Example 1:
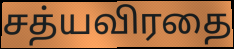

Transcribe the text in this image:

சத்யவிரதை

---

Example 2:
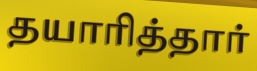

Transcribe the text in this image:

தயாரித்தார்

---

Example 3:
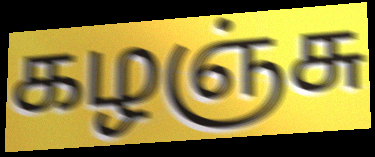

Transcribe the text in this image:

கழஞ்சு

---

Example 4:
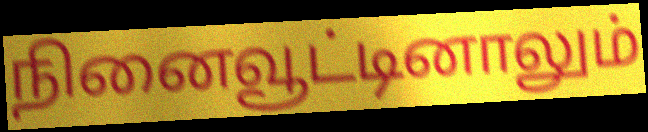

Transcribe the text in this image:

நினைவூட்டினாலும்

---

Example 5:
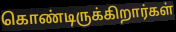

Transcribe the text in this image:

கொண்டிருக்கிறார்கள்